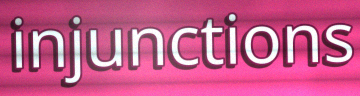
injunctions